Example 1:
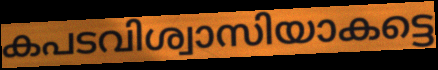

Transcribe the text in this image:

കപടവിശ്വാസിയാകട്ടെ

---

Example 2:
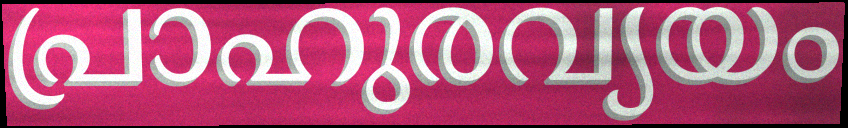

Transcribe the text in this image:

പ്രാഹുരവ്യയം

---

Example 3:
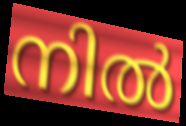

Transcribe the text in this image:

നിൽ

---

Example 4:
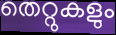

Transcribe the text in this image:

തെറ്റുകളും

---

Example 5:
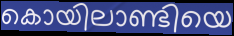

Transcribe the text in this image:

കൊയിലാണ്ടിയെ